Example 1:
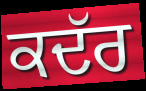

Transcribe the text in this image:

ਕਦੱਰ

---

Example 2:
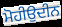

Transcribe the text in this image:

ਮੋਹੀਉਦੀਨ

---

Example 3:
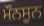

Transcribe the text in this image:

ਮੌਨਸੂਨ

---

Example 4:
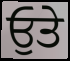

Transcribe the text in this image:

ਓੁਤੇ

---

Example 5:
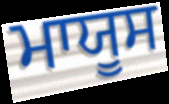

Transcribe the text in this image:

ਮਾਯੂਸ